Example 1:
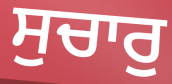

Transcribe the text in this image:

ਸੁਚਾਰੁ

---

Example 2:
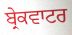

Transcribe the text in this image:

ਬ੍ਰੇਕਵਾਟਰ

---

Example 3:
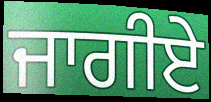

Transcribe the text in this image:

ਜਾਗੀਏ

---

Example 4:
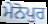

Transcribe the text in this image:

ਮੇਨੋਪੁਰ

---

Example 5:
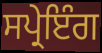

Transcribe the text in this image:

ਸਪ੍ਰੇਇੰਗ